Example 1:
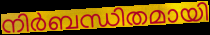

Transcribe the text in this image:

നിർബന്ധിതമായി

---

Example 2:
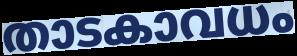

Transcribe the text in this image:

താടകാവധം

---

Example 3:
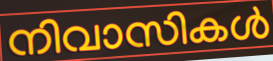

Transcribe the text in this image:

നിവാസികൾ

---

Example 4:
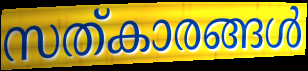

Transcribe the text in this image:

സത്കാരങ്ങൾ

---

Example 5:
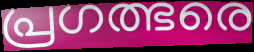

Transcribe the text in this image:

പ്രഗത്ഭരെ